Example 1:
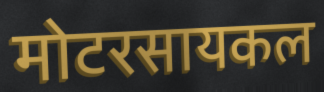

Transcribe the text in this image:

मोटरसायकल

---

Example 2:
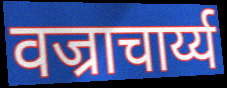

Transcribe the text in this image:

वज्राचार्य्य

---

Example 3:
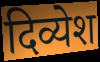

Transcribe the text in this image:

दिव्येश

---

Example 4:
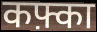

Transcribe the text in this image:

कफ़्का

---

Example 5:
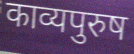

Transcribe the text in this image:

काव्यपुरुष